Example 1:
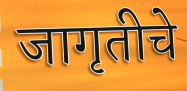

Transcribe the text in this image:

जागृतीचे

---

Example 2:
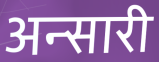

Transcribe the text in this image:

अन्सारी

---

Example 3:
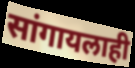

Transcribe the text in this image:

सांगायलाही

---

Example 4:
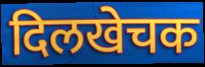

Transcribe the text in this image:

दिलखेचक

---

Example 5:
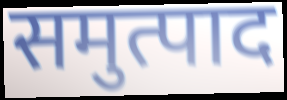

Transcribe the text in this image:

समुत्पाद